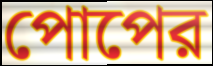
পোপের